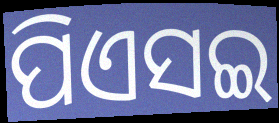
ପିଏସଇ